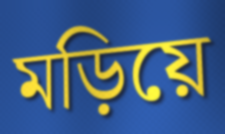
মড়িয়ে